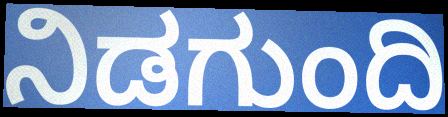
ನಿಡಗುಂದಿ